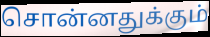
சொன்னதுக்கும்